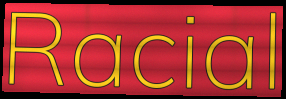
Racial